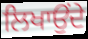
ਲਿਖਾਉਂਦੇ